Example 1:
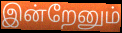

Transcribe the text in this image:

இன்றேனும்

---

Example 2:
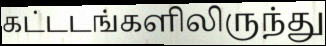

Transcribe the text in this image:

கட்டடங்களிலிருந்து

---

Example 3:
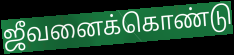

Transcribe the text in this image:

ஜீவனைக்கொண்டு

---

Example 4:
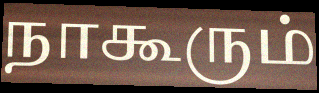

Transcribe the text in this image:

நாகூரும்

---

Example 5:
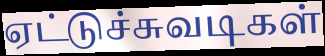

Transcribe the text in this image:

ஏட்டுச்சுவடிகள்